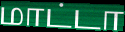
மாட்டா